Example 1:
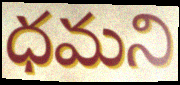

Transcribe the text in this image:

ధమని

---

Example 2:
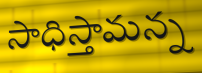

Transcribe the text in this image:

సాధిస్తామన్న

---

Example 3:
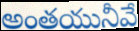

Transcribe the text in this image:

అంతయునీవే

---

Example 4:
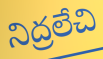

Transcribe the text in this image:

నిద్రలేచి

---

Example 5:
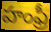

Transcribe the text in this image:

హంఫ్రీ